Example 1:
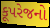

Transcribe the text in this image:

કૂપરેજનો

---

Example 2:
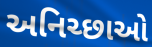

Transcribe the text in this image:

અનિચ્છાઓ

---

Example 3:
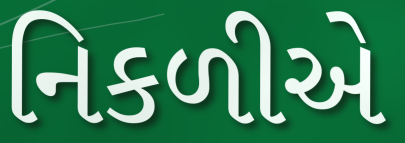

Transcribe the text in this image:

નિકળીએ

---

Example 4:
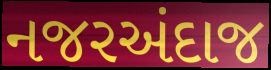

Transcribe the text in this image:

નજરઅંદાજ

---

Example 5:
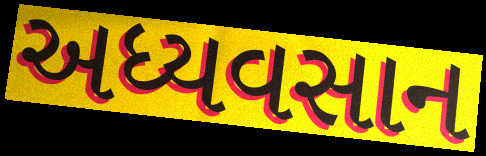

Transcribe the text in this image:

અધ્યવસાન